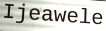
Ijeawele